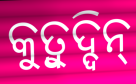
କୁତ୍ବୁଦ୍ଦିନ୍